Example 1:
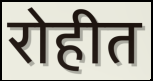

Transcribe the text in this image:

रोहीत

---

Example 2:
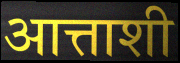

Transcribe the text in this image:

आत्ताशी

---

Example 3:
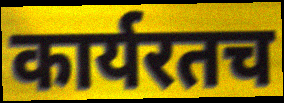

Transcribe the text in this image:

कार्यरतच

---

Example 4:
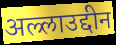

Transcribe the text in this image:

अल्लाउद्दीन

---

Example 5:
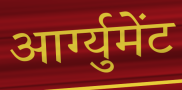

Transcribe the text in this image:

आर्ग्युमेंट